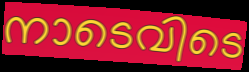
നാടെവിടെ